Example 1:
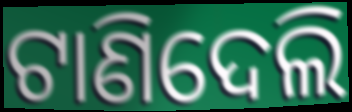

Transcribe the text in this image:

ଟାଣିଦେଲି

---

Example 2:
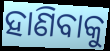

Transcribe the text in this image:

ହାଣିବାକୁ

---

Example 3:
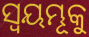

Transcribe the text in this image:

ସ୍ଵୟମ୍ଭୂକୁ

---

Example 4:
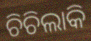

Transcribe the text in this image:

ଚିଚିଲାକି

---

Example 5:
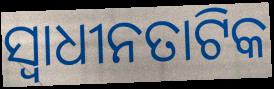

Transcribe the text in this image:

ସ୍ୱାଧୀନତାଟିକ